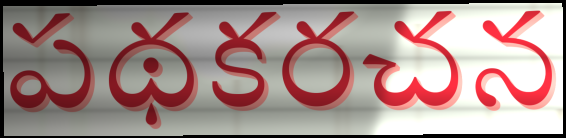
పథకరచన